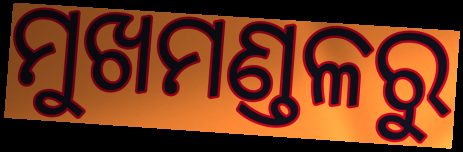
ମୁଖମଣ୍ଡଳରୁ